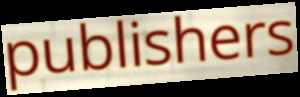
publishers